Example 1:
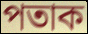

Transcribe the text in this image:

পতাক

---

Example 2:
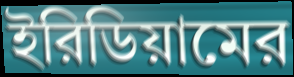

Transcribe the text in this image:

ইরিডিয়ামের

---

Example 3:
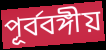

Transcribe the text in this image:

পূর্ববঙ্গীয়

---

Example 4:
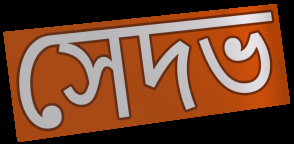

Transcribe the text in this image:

সেদভ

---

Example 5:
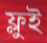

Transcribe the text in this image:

ফ্লুই